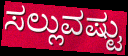
ಸಲ್ಲುವಷ್ಟು